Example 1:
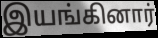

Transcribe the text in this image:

இயங்கினார்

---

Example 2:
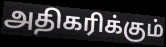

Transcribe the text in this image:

அதிகரிக்கும்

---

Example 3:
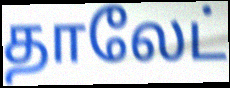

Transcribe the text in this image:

தாலேட்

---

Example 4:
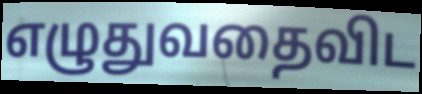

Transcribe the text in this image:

எழுதுவதைவிட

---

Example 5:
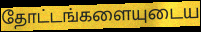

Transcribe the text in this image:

தோட்டங்களையுடைய